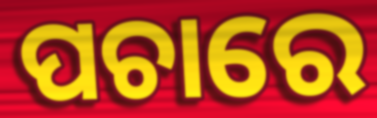
ପଚାରେ